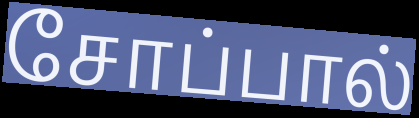
சோப்பால்